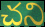
చని